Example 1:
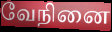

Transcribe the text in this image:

வேநினை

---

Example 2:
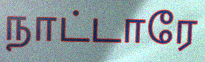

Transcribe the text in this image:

நாட்டாரே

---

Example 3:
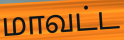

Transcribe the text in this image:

மாவட்ட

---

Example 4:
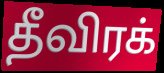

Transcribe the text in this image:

தீவிரக்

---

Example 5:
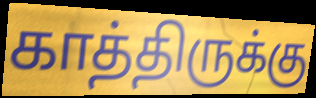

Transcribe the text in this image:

காத்திருக்கு